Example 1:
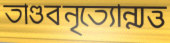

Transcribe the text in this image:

তাণ্ডবনৃত্যোন্মত্ত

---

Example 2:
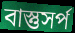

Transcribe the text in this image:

বাস্তুসর্প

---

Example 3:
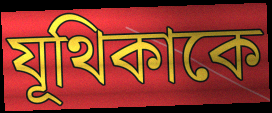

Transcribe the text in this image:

যূথিকাকে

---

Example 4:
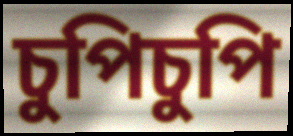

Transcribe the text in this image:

চুপিচুপি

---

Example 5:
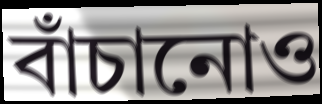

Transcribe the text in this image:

বাঁচানোও